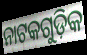
ନାଟକଗୁଡ଼ିକ